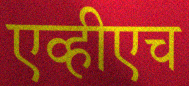
एव्हीएच